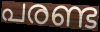
പരണ്ട